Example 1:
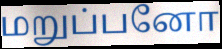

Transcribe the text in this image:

மறுப்பனோ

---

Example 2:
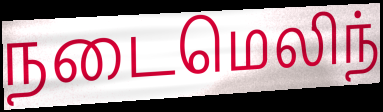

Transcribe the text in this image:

நடைமெலிந்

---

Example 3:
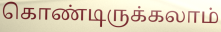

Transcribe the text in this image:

கொண்டிருக்கலாம்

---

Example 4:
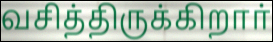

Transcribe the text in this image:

வசித்திருக்கிறார்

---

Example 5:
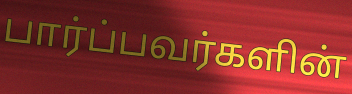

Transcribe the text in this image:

பார்ப்பவர்களின்